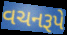
વચનરૂપે